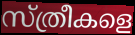
സ്ത്രീകളെ